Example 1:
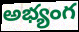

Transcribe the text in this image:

అభ్యంగ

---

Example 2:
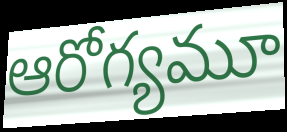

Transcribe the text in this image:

ఆరోగ్యమూ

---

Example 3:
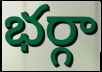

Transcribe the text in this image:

భర్గా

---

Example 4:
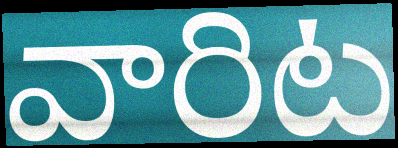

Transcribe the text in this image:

వారిట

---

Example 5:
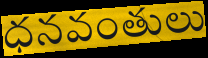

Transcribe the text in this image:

ధనవంతులు